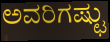
ಅವರಿಗಷ್ಟು